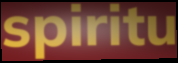
spiritu